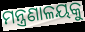
ମନ୍ତ୍ରଣାଳୟକୁ